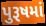
પુરૂષમાં